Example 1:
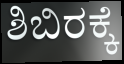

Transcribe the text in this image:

ಶಿಬಿರಕ್ಕೆ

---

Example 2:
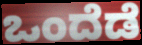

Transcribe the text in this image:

ಒಂದೆಡೆ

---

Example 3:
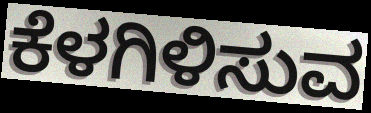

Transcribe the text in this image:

ಕೆಳಗಿಳಿಸುವ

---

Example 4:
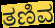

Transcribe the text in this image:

ತಣಿವ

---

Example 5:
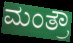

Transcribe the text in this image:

ಮಂತ್ರೌ